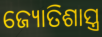
ଜ୍ୟୋତିଶାସ୍ତ୍ର